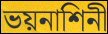
ভয়নাশিনী